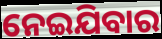
ନେଇଯିବାର